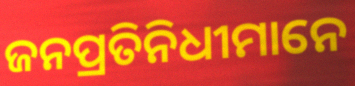
ଜନପ୍ରତିନିଧୀମାନେ